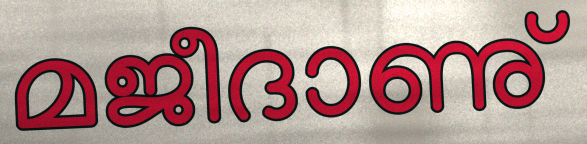
മജീദാണു്